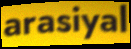
arasiyal